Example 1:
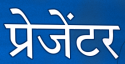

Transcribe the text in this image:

प्रेजेंटर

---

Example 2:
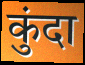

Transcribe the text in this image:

कुंदा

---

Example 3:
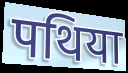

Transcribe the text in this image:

पथिया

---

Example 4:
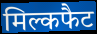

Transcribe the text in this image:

मिल्कफैट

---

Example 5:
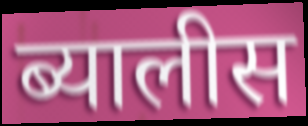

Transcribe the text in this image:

ब्यालीस